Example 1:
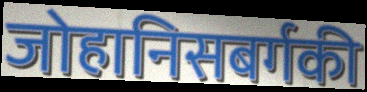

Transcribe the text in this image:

जोहानिसबर्गकी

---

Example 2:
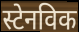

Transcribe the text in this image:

स्टेनविक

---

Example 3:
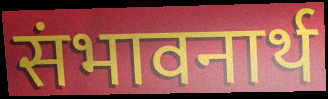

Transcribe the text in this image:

संभावनार्थ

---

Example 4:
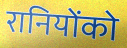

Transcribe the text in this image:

रानियोंको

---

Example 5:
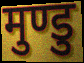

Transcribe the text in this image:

मुण्डु